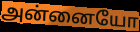
அன்னையோ